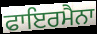
ਫਾਇਰਮੈਨਾ